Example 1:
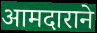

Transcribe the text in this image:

आमदाराने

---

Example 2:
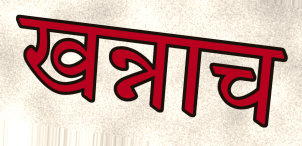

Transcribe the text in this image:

खन्नाच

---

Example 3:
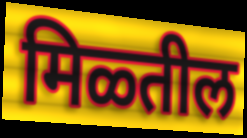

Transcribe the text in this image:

मिळ्तील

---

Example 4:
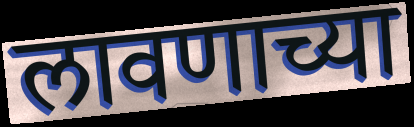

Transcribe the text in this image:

लावणाच्या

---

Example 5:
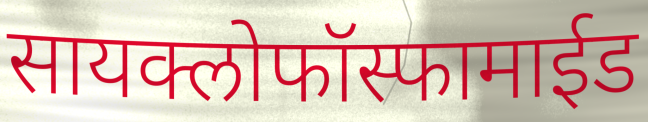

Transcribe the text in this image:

सायक्लोफॉस्फामाईड